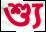
শ্যু